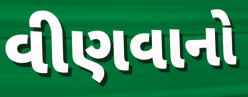
વીણવાનો